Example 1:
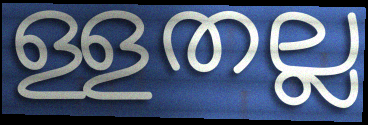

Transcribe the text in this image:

ള്ളതല്ല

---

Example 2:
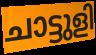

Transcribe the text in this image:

ചാട്ടുളി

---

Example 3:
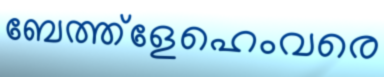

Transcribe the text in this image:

ബേത്ത്ളേഹെംവരെ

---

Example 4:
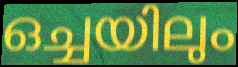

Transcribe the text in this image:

ഒച്ചയിലും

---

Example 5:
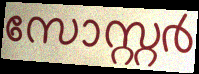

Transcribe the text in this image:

സോസ്റ്റർ